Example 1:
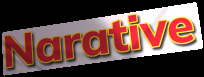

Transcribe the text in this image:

Narative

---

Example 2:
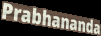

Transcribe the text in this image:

Prabhananda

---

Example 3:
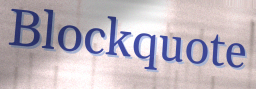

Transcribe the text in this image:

Blockquote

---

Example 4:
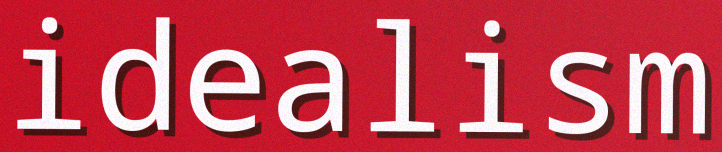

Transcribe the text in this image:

idealism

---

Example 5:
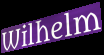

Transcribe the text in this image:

Wilhelm